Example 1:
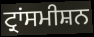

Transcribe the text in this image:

ਟ੍ਰਾਂਸਮੀਸ਼ਨ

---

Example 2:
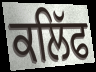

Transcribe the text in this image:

ਕਲਿੱਫ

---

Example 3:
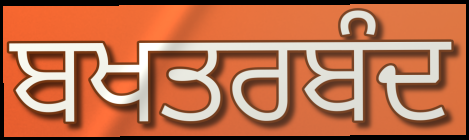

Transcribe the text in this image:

ਬਖਤਰਬੰਦ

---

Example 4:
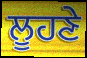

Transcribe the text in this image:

ਲੂਹਣੇ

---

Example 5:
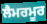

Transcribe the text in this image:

ਲੈਮਰਮੂਰ